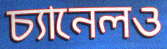
চ্যানেলও